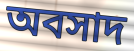
অবসাদ